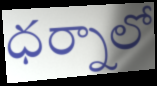
ధర్నాలో